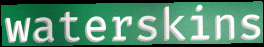
waterskins